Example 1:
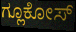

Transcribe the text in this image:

ಗ್ಲೂಕೋಸ್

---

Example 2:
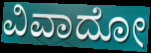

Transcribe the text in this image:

ವಿವಾದೋ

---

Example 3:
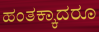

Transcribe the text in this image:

ಹಂತಕ್ಕಾದರೂ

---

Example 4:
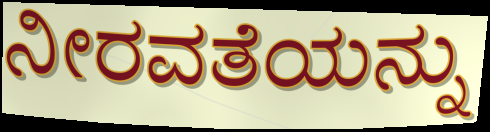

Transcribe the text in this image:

ನೀರವತೆಯನ್ನು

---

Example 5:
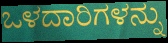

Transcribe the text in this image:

ಒಳದಾರಿಗಳನ್ನು